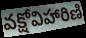
వక్షోవిహారిణి